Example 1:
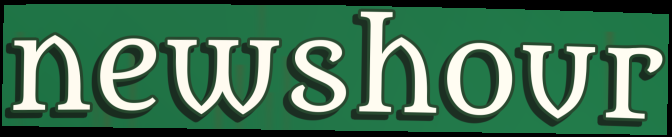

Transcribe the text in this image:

newshour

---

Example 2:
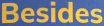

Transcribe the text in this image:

Besides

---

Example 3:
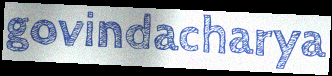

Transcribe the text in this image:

govindacharya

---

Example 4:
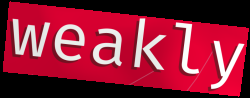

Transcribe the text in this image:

weakly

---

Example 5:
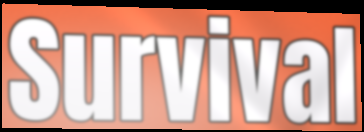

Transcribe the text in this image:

Survival